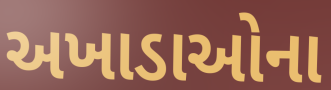
અખાડાઓના